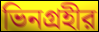
ভিনগ্রহীর